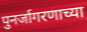
पुनर्जागरणाच्या